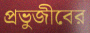
প্রভুজীবের